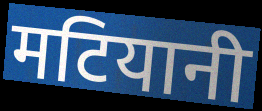
मटियानी